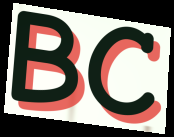
BC